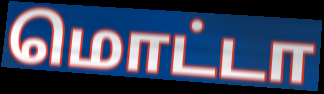
மொட்டா